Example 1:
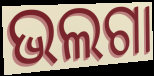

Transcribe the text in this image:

ଭଲଗା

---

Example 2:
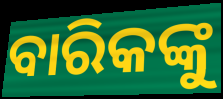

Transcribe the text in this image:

ବାରିକଙ୍କୁ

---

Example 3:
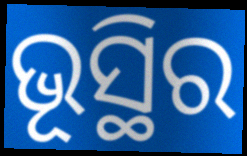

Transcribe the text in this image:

ଭୂସ୍ଥିର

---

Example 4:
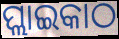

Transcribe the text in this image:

ପ୍ଲାଇକାଠ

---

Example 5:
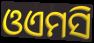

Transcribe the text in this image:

ଓଏମସି